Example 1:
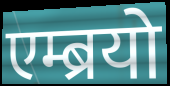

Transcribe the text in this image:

एम्ब्रयो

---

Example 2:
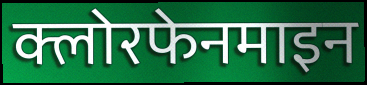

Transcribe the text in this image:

क्लोरफेनमाइन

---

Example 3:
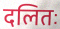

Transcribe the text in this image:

दलितः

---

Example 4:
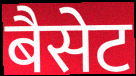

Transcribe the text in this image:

बैसेट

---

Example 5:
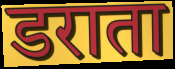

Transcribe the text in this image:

डराता